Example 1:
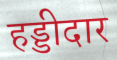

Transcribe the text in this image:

हड्डीदार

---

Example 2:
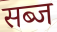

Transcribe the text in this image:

सब्ज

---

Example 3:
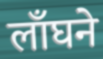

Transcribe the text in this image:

लाँघने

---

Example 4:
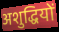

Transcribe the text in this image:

अशुद्धियों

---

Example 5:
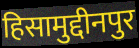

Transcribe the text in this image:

हिसामुद्दीनपुर